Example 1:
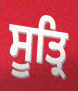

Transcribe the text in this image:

ਸੂਤ੍ਰਿ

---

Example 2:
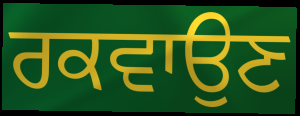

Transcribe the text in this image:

ਰਕਵਾਉਣ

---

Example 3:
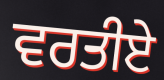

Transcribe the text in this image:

ਵਰਤੀਏ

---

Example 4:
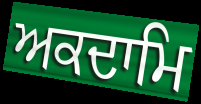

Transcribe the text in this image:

ਅਕਦਾਮਿ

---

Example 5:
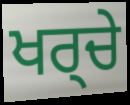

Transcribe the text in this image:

ਖਰ੍ਚੇ